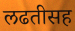
लढतीसह